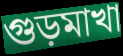
গুড়মাখা